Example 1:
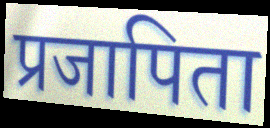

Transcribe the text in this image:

प्रजापिता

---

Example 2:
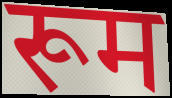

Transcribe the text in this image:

रूम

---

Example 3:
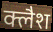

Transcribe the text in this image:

क्लैश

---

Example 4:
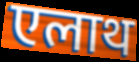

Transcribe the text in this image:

एलाथ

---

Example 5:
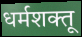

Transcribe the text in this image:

धर्मशक्तू